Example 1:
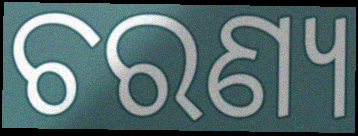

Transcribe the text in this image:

ଚରଣ୍ୟ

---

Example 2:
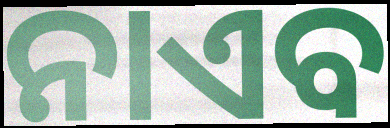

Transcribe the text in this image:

ନାଏବ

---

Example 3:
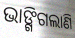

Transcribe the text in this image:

ଭାଙ୍ଗିଗଲାଣି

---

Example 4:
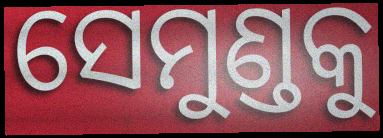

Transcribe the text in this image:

ସେମୁଣ୍ଡକୁ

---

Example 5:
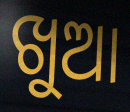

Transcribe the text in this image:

ଖୁଆ